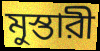
মুস্তারী